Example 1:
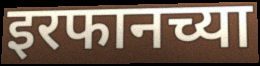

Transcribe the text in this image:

इरफानच्या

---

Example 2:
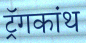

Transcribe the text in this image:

ट्रॅगकांथ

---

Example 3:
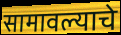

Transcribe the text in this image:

सामावल्याचे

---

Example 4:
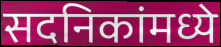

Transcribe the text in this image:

सदनिकांमध्ये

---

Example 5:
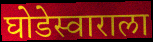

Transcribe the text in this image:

घोडेस्वाराला